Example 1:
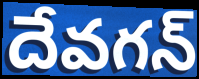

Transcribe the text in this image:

దేవగన్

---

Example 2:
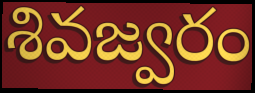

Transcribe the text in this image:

శివజ్వరం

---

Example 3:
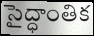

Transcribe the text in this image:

సైద్ధాంతిక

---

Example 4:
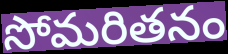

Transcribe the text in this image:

సోమరితనం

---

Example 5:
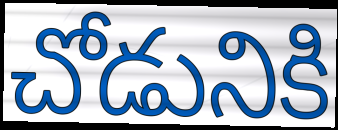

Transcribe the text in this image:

చోడునికి